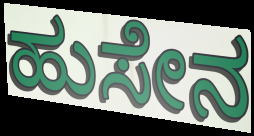
ಹುಸೇನ